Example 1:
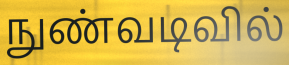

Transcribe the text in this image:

நுண்வடிவில்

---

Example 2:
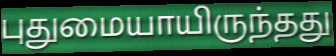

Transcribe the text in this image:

புதுமையாயிருந்தது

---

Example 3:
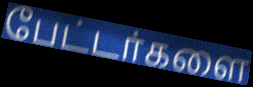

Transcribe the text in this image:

பேட்டர்களை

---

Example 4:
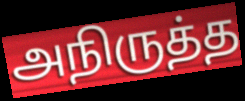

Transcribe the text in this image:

அநிருத்த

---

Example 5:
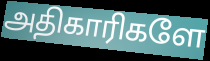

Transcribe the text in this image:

அதிகாரிகளே